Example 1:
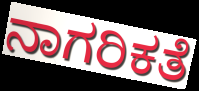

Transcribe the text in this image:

ನಾಗರಿಕತೆ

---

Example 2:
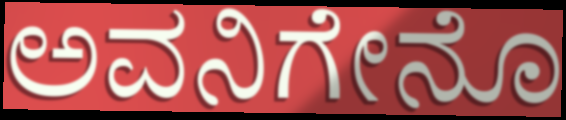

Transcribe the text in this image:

ಅವನಿಗೇನೊ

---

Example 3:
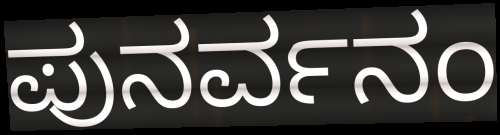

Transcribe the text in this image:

ಪುನರ್ವನಂ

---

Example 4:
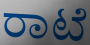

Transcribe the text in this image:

ರಾಟೆ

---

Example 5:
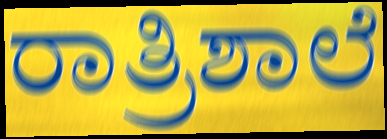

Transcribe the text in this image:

ರಾತ್ರಿಶಾಲೆ